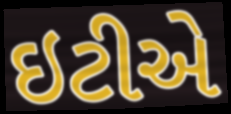
ઇટીએ